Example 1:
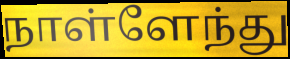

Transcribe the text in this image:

நாள்ளேந்து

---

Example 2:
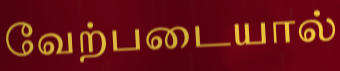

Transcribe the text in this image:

வேற்படையால்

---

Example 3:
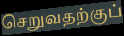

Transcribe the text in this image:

செறுவதற்குப்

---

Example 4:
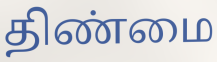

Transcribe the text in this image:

திண்மை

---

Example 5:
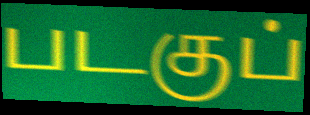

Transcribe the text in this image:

படகுப்